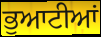
ਭੁਆਟੀਆਂ